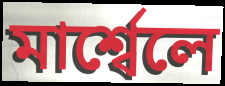
মাৰ্শ্বেলে